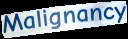
Malignancy